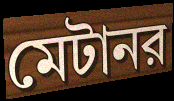
মেটানর